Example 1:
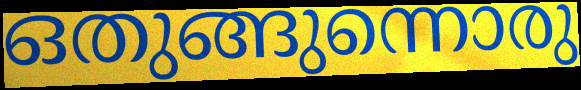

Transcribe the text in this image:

ഒതുങ്ങുന്നൊരു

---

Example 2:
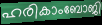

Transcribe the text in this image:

ഹരികാംബോജി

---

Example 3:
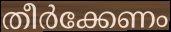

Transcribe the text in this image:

തീർക്കേണം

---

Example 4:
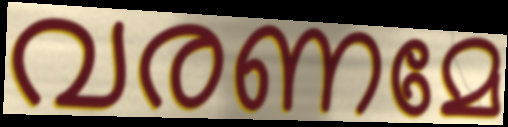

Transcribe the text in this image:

വരണമേ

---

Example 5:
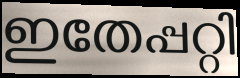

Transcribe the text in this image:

ഇതേപ്പറ്റി